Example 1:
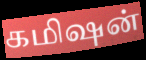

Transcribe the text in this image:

கமிஷன்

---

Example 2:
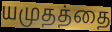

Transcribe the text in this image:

யமுதத்தை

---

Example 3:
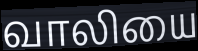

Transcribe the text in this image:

வாலியை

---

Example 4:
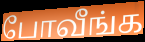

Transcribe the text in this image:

போவீங்க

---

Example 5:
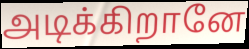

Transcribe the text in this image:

அடிக்கிறானே